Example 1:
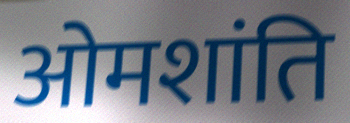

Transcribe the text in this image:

ओमशांति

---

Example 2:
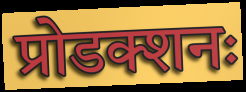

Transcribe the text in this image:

प्रोडक्शनः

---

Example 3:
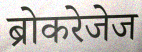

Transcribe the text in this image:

ब्रोकरेजेज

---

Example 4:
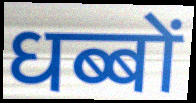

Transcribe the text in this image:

धब्बों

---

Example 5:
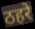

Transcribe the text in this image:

ठहरे